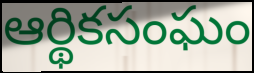
ఆర్థికసంఘం